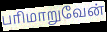
பரிமாறுவேன்